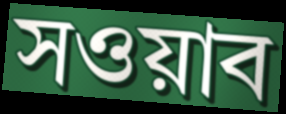
সওয়াব